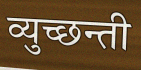
व्युच्छन्ती